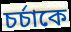
চর্চাকে